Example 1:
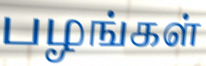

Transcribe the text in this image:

பழங்கள்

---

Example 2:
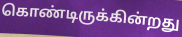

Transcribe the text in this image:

கொண்டிருக்கின்றது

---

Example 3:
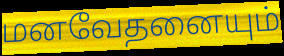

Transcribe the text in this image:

மனவேதனையும்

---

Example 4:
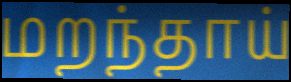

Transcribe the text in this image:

மறந்தாய்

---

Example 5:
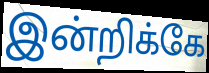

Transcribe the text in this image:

இன்றிக்கே